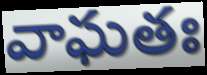
వాఘతః